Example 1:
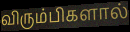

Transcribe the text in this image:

விரும்பிகளால்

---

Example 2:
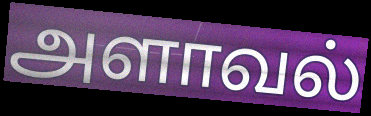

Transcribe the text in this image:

அளாவல்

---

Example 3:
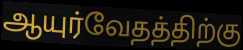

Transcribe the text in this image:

ஆயுர்வேதத்திற்கு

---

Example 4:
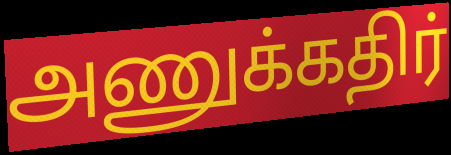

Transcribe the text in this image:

அணுக்கதிர்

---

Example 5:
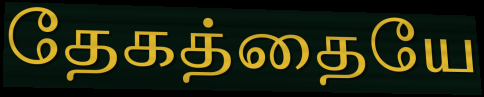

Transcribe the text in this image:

தேகத்தையே